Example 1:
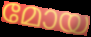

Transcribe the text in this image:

മോയ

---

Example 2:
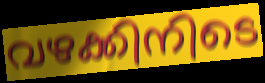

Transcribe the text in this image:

വഴക്കിനിടെ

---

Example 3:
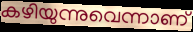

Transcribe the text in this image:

കഴിയുന്നുവെന്നാണ്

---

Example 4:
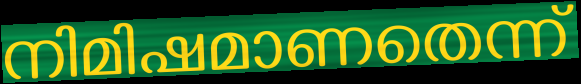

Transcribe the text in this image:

നിമിഷമാണതെന്ന്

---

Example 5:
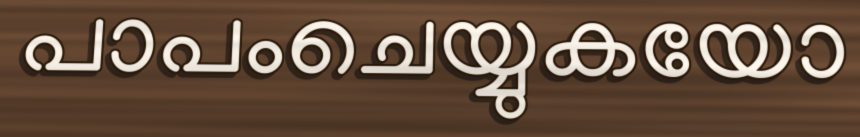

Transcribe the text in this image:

പാപംചെയ്യുകയോ